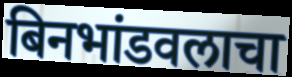
बिनभांडवलाचा